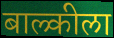
बाल्कीला